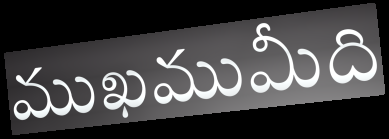
ముఖముమీది